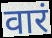
वारं